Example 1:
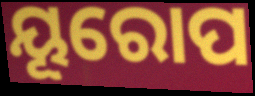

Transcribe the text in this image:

ୟୂରୋପ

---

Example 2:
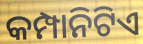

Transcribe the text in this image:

କମ୍ପାନିଟିଏ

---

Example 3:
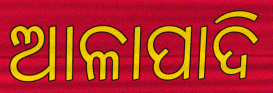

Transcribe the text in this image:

ଆଳାପାଦି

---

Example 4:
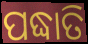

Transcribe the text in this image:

ପଦ୍ଧାତି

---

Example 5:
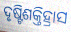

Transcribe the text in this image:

ଦୃଷ୍ଟିଶକ୍ତିହ୍ରାସ